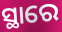
ସ୍ଥାରେ